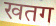
खतग